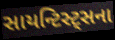
સાયન્ટિસ્ટ્સના